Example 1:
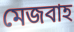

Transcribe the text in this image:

মেজবাহ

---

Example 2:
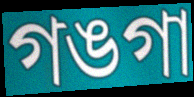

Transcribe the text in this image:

গঙগা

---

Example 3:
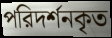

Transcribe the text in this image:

পরিদর্শনকৃত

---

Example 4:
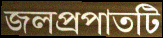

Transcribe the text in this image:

জলপ্রপাতটি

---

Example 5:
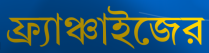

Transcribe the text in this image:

ফ্র্যাঞ্চাইজের